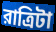
রাত্রিটা